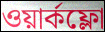
ওয়ার্কফ্লো